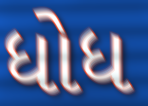
ધોધ